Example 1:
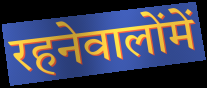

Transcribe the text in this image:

रहनेवालोंमें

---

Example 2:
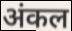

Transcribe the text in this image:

अंकल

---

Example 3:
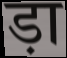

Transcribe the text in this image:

ड़ा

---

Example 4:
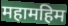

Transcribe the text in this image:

महामहिम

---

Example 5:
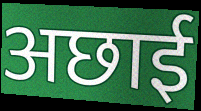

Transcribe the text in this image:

अछाई